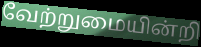
வேற்றுமையின்றி